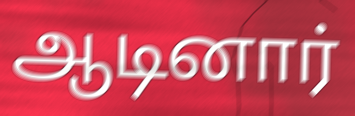
ஆடினார்